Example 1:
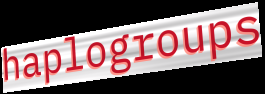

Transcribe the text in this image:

haplogroups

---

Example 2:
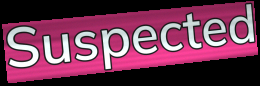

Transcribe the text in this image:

Suspected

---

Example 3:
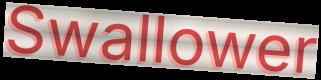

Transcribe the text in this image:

Swallower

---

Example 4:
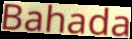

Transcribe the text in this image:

Bahada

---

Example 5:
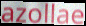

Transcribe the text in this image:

azollae